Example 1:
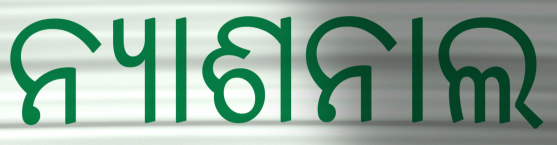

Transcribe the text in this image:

ନ୍ୟାଶନାଲ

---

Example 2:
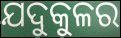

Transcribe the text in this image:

ଯଦୁକୁଳର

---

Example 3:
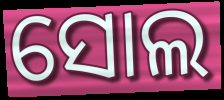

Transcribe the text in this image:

ସୋଲ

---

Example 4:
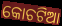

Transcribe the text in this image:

କୋଚଟିଆ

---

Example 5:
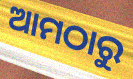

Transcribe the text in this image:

ଆମଠାରୁ